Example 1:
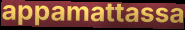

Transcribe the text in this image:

appamattassa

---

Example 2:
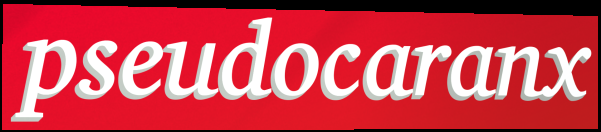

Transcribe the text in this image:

pseudocaranx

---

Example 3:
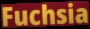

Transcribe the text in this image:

Fuchsia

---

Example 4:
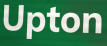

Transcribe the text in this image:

Upton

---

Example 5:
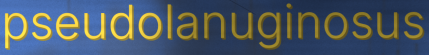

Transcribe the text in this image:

pseudolanuginosus